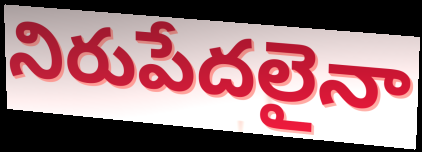
నిరుపేదలైనా